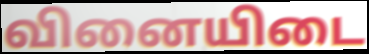
வினையிடை